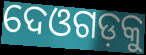
ଦେଓଗଡ଼କୁ